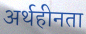
अर्थहीनता